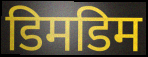
डिमडिम